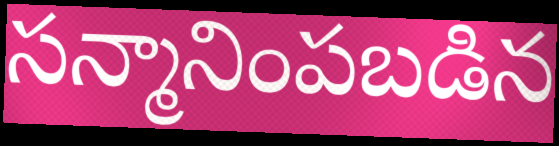
సన్మానింపబడిన